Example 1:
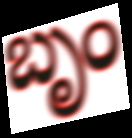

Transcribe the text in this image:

బృం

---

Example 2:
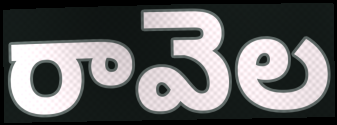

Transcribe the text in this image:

రావెల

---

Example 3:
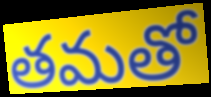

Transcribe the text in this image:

తమతో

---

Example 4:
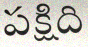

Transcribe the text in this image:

పక్షిది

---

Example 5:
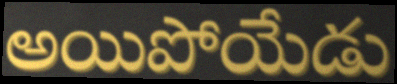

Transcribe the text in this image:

అయిపోయేడు